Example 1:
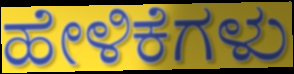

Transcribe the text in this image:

ಹೇಳಿಕೆಗಳು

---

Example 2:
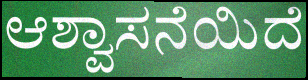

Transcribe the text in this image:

ಆಶ್ವಾಸನೆಯಿದೆ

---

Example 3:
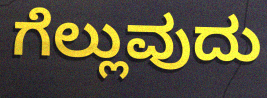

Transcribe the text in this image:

ಗೆಲ್ಲುವುದು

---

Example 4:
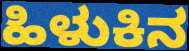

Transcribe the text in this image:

ಹಿಳುಕಿನ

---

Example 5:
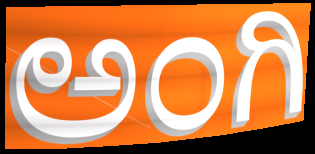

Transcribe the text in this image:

ಅಂಗಿ